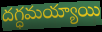
దగ్ధమయ్యాయి